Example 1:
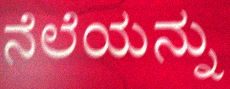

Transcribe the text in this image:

ನೆಲೆಯನ್ನು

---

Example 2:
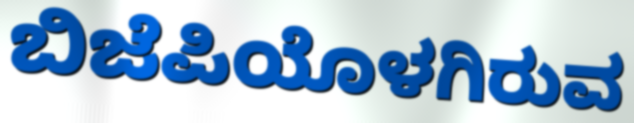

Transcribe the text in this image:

ಬಿಜೆಪಿಯೊಳಗಿರುವ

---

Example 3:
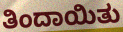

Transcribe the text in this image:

ತಿಂದಾಯಿತು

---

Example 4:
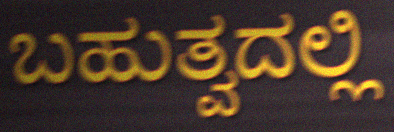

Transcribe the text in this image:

ಬಹುತ್ವದಲ್ಲಿ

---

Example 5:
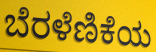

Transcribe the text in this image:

ಬೆರಳೆಣಿಕೆಯ